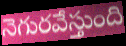
నెగురవేస్తుంది